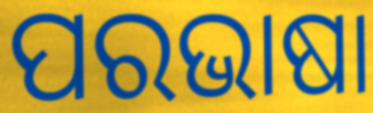
ପରଭାଷା